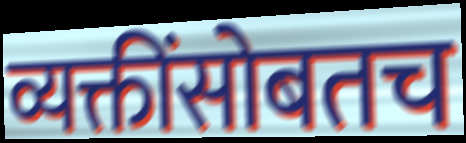
व्यक्तींसोबतच